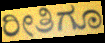
ರೀತಿಗೂ